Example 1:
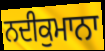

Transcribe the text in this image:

ਨਦੀਕੁਮਾਨਾ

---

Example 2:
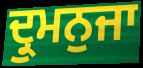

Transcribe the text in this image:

ਦ੍ਰੁਮਨੁਜਾ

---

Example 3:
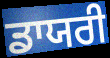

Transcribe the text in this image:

ਡਾਯਰੀ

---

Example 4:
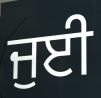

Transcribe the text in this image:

ਜੁਈ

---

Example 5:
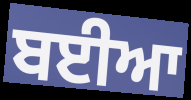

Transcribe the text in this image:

ਬਈਆ